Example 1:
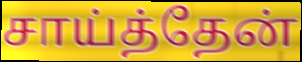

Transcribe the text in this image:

சாய்த்தேன்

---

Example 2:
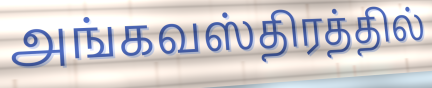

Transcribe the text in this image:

அங்கவஸ்திரத்தில்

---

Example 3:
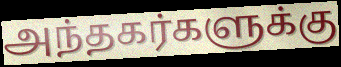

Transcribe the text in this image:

அந்தகர்களுக்கு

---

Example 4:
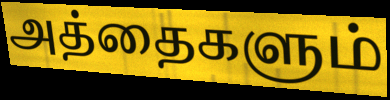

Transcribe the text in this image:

அத்தைகளும்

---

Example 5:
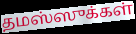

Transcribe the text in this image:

தமஸ்ஸுக்கள்